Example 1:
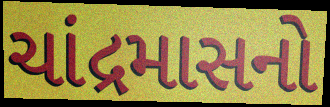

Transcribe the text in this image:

ચાંદ્રમાસનો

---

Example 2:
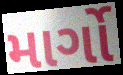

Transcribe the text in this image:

માર્ગો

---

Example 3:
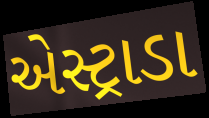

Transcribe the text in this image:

એસ્ટ્રાડા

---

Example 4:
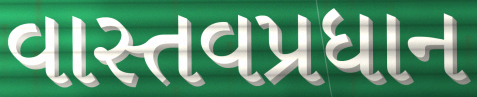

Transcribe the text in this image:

વાસ્તવપ્રધાન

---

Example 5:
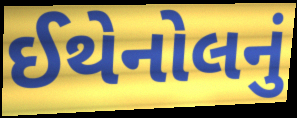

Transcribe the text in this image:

ઈથેનોલનું